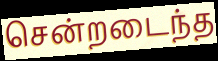
சென்றடைந்த